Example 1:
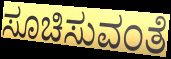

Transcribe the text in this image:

ಸೂಚಿಸುವಂತೆ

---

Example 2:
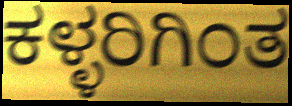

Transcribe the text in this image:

ಕಳ್ಳರಿಗಿಂತ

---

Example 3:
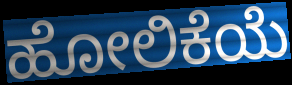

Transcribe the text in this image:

ಹೋಲಿಕೆಯೆ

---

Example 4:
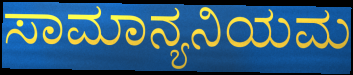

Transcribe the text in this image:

ಸಾಮಾನ್ಯನಿಯಮ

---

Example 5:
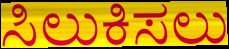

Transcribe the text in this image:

ಸಿಲುಕಿಸಲು